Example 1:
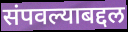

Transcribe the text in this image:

संपवल्याबद्दल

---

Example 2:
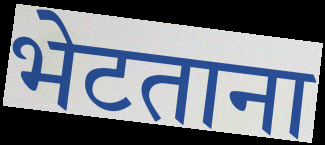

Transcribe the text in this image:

भेटताना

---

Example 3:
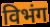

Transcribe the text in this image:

विभंग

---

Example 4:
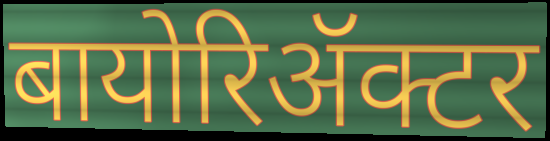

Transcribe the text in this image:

बायोरिॲक्टर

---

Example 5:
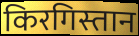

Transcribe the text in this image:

किरगिस्तान